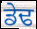
ਡੇਢ